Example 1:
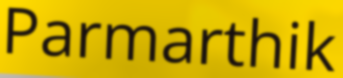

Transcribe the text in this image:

Parmarthik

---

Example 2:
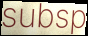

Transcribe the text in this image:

subsp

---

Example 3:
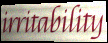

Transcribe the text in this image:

irritability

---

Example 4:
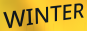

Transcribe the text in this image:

WINTER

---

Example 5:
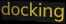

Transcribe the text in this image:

docking